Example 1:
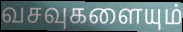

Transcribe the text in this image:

வசவுகளையும்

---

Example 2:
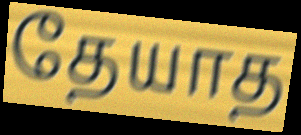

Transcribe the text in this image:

தேயாத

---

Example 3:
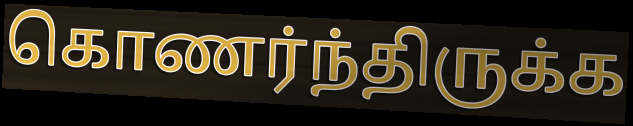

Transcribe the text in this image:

கொணர்ந்திருக்க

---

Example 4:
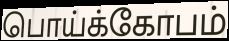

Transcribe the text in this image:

பொய்க்கோபம்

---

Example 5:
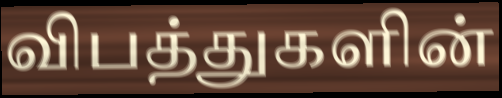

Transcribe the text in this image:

விபத்துகளின்